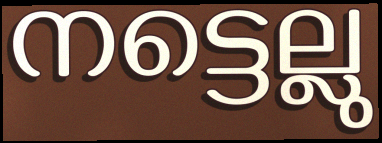
നട്ടെല്ലു